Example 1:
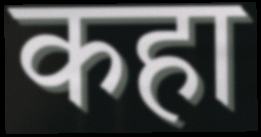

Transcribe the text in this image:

कहा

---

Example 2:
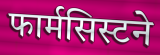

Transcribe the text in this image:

फार्मसिस्टने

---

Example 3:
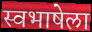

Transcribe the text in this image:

स्वभाषेला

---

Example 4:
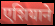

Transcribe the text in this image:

एशियाने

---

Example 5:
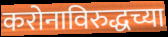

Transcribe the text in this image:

करोनाविरुद्धच्या